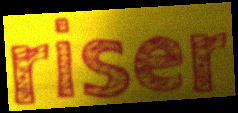
riser